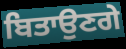
ਬਿਤਾਉਣਗੇ